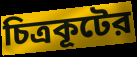
চিত্রকূটের